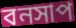
বনসাপ